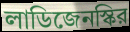
লাডিজেনস্কির